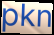
pkn